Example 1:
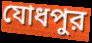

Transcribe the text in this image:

যোধপুর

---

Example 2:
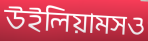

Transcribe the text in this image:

উইলিয়ামসও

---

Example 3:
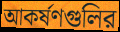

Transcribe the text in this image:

আকর্ষণগুলির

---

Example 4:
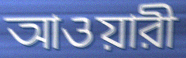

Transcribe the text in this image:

আওয়ারী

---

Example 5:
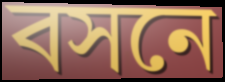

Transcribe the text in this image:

বসনে